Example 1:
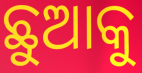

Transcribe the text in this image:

ଛୁଆକୁ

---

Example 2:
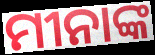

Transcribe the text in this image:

ମୀନାଙ୍କ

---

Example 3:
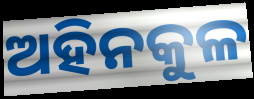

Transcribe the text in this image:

ଅହିନକୁଳ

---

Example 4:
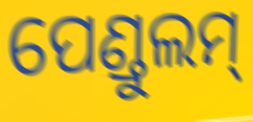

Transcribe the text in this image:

ପେଣ୍ଡୁଲମ୍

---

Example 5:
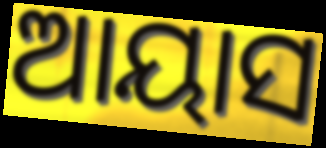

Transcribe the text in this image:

ଆୟାସ